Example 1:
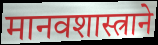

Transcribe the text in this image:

मानवशास्त्राने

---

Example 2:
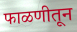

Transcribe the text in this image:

फाळणीतून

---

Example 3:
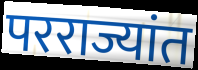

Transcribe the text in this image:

परराज्यांत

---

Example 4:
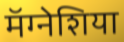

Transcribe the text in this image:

मॅग्‍नेशिया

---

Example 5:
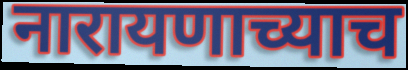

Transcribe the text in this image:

नारायणाच्याच